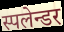
स्पलेन्डर